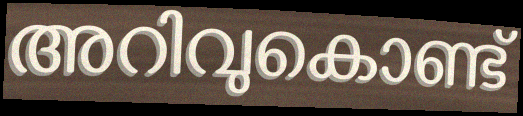
അറിവുകൊണ്ട്